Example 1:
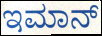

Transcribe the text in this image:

ಇಮಾನ್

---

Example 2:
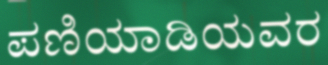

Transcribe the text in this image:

ಪಣಿಯಾಡಿಯವರ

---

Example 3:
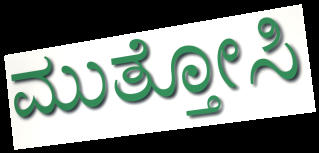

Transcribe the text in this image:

ಮುತ್ತೋಸಿ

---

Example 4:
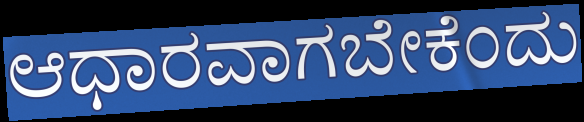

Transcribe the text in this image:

ಆಧಾರವಾಗಬೇಕೆಂದು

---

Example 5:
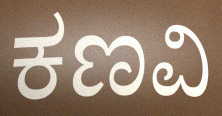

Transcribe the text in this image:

ಕಣವಿ